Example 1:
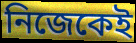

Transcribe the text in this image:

নিজেকেই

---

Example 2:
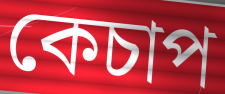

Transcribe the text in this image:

কেচাপ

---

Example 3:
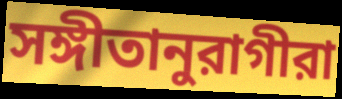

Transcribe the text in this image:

সঙ্গীতানুরাগীরা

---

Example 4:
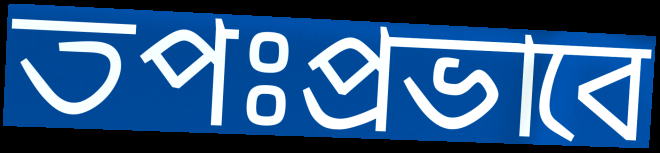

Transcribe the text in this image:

তপঃপ্রভাবে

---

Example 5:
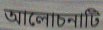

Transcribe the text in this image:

আলোচনাটি